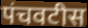
पंचवटीस